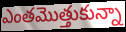
ఎంతమొత్తుకున్నా